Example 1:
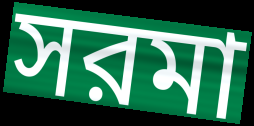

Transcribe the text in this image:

সরমা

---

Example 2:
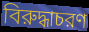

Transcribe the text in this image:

বিরুদ্ধাচরণ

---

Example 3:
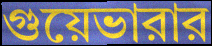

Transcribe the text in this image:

গুয়েভারার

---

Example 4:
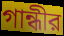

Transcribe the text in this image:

গান্ধীর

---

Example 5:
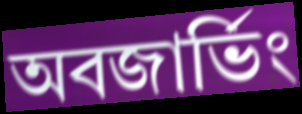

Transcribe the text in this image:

অবজার্ভিং